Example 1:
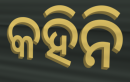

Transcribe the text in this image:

କହିନି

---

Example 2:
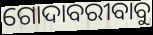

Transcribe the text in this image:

ଗୋଦାବରୀବାବୁ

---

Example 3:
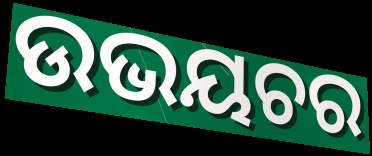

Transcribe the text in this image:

ଉଭୟଚର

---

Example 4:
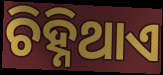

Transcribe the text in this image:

ଚିହ୍ନିଥାଏ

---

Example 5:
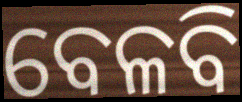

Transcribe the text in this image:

ବେଳବି